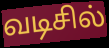
வடிசில்